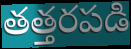
తత్తరపడి